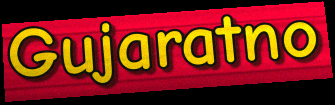
Gujaratno